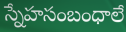
స్నేహసంబంధాలే